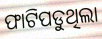
ଫାଟିପଡୁଥିଲା